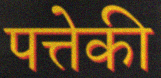
पत्तेकी